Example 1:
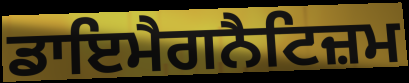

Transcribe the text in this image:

ਡਾਇਮੈਗਨੈਟਿਜ਼ਮ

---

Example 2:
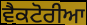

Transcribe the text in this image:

ਵੈਕਟੋਰੀਆ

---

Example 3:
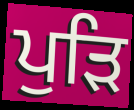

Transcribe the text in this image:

ਪੁੜਿ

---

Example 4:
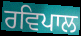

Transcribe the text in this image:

ਰਵਿਪਾਲ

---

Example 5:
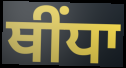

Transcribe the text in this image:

ਥੀਂਧਾ